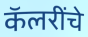
कॅलरींचे